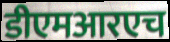
डीएमआरएच